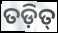
ତଡ଼ିତ୍